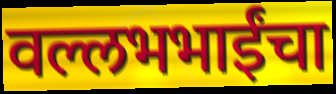
वल्लभभाईंचा